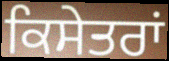
ਕਿਸੇਤਰਾਂ